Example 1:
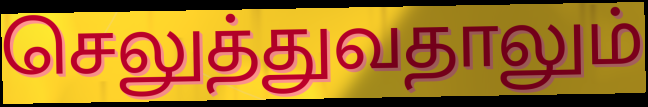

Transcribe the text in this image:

செலுத்துவதாலும்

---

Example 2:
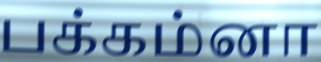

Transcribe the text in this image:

பக்கம்னா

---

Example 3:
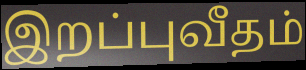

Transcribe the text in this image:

இறப்புவீதம்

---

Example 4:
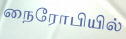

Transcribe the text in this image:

நைரோபியில்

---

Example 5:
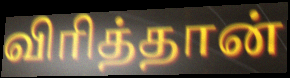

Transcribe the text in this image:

விரித்தான்